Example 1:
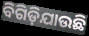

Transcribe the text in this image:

ବିଗିଡ଼ିଯାଉଛି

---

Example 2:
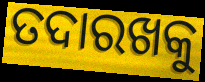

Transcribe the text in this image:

ତଦାରଖକୁ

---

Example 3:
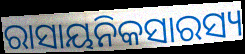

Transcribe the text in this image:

ରାସାୟନିକସାରସ୍ୟ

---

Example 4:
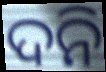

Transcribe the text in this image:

ଦନି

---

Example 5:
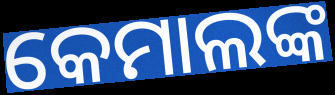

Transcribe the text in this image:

କେମାଲଙ୍କ